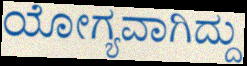
ಯೋಗ್ಯವಾಗಿದ್ದು